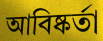
আবিষ্কর্তা